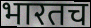
भारतच